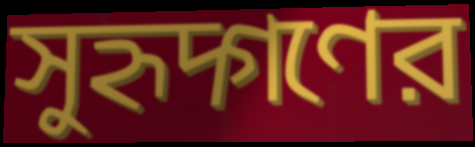
সুহৃদ্গণের